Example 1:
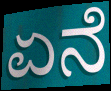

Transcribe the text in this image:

ಏನೆ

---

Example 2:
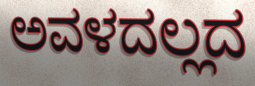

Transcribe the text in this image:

ಅವಳದಲ್ಲದ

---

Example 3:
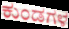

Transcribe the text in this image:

ಕುಂಡಗಳ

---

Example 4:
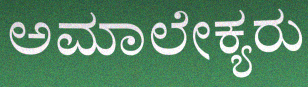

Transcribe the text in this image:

ಅಮಾಲೇಕ್ಯರು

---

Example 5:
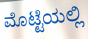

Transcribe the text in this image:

ಮೊಟ್ಟೆಯಲ್ಲಿ